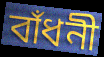
বাঁধনী